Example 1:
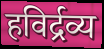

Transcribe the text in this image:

हविर्द्रव्य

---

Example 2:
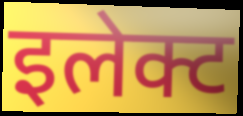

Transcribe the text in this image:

इलेक्ट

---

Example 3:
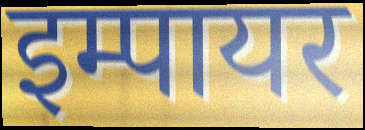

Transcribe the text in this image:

इम्पायर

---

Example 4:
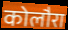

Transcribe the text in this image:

कोलौरा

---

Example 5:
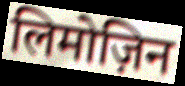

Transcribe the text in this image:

लिमोज़िन